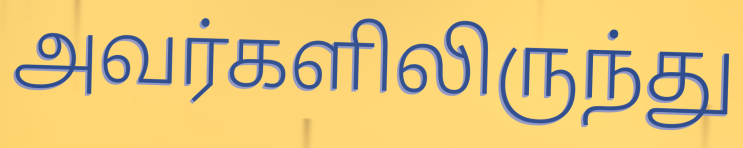
அவர்களிலிருந்து